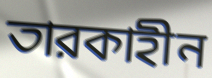
তারকাহীন